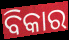
ବିକାର